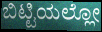
ಬಿಟ್ಟಿಯಲ್ಲೋ